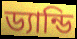
ড্যান্ডি